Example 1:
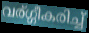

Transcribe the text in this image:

വര്ഗ്ഗീകരിച്ച്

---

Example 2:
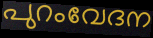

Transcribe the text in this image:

പുറംവേദന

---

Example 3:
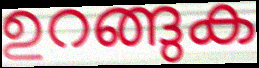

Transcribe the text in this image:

ഉറങ്ങുക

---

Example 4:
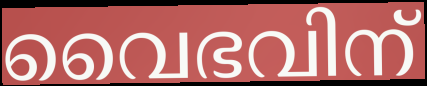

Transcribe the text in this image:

വൈഭവിന്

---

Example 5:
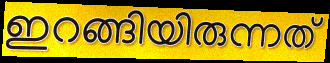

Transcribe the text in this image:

ഇറങ്ങിയിരുന്നത്